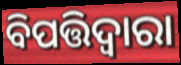
ବିପତ୍ତିଦ୍ୱାରା